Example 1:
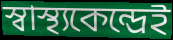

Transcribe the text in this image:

স্বাস্থ্যকেন্দ্রেই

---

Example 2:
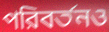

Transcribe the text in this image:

পরিবর্তনও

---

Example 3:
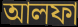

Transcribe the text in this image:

আলফা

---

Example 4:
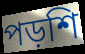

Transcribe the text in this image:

পড়শি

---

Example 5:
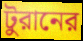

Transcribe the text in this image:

টুরানের